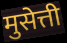
मुसेत्ती